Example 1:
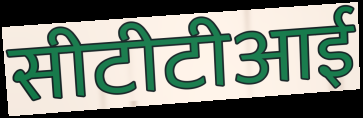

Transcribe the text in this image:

सीटीटीआई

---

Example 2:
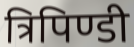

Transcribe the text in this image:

त्रिपिण्डी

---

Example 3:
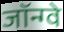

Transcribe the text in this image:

जॉन्ग्वे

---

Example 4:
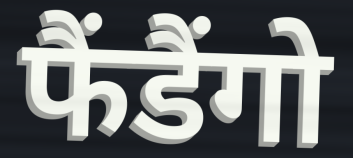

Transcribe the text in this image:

फैंडैंगो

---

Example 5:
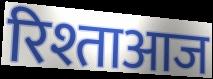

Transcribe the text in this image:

रिश्ताआज